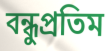
বন্ধুপ্রতিম